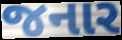
જનાર